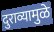
दुराव्यामुळे